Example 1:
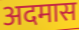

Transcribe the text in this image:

अदमास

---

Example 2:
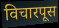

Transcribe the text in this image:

विचारपूस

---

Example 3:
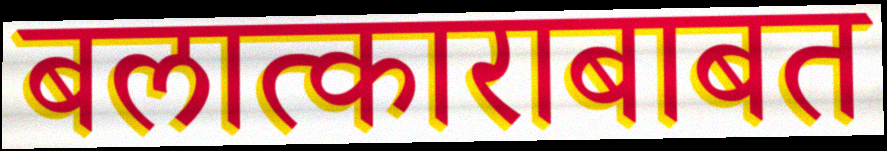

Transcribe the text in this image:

बलात्काराबाबत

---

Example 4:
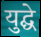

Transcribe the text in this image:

युद्घे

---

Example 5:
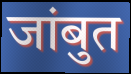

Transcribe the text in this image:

जांबुत